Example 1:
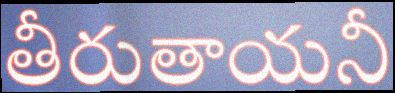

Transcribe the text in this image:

తీరుతాయనీ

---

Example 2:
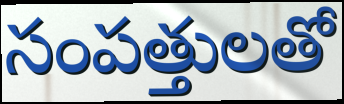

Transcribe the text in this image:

సంపత్తులతో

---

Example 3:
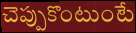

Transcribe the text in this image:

చెప్పుకొంటుంటే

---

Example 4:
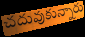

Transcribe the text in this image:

చదువుకున్నారు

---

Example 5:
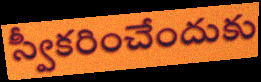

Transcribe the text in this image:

స్వీకరించేందుకు